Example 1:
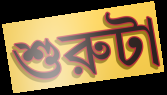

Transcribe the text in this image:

শুরুটা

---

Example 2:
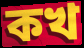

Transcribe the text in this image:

কখ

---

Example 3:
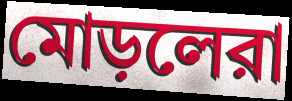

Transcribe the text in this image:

মোড়লেরা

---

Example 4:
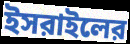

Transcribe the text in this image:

ইসরাইলের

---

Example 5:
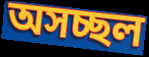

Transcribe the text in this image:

অসচ্ছল